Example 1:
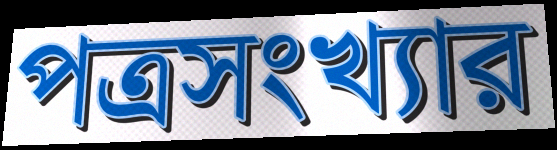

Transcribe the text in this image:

পত্রসংখ্যার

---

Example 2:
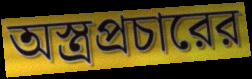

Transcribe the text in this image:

অস্ত্রপ্রচারের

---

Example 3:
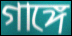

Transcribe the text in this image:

গাঙ্গে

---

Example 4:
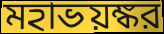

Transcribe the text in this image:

মহাভয়ঙ্কর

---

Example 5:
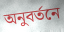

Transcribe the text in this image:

অনুবর্তনে